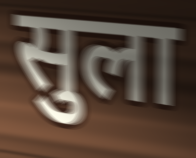
सुला